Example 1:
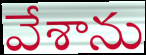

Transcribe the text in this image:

వేశాను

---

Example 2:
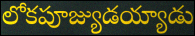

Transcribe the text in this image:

లోకపూజ్యుడయ్యాడు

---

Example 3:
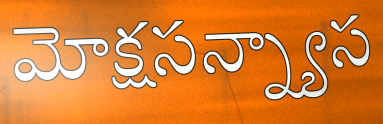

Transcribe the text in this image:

మోక్షసన్న్యాస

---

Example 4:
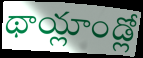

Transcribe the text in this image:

థాయ్లాండ్లో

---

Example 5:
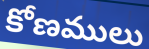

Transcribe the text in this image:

కోణములు